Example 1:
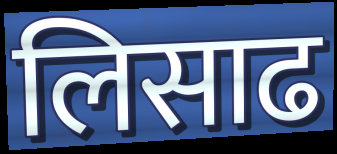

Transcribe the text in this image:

लिसाढ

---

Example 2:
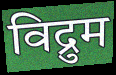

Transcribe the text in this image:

विद्रुम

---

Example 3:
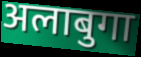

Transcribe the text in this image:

अलाबुगा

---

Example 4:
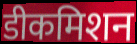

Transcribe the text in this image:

डीकमिशन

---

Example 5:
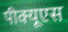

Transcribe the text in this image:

पीक्यूएस